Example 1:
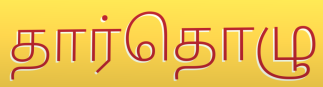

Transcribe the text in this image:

தார்தொழு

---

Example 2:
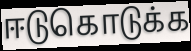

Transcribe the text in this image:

ஈடுகொடுக்க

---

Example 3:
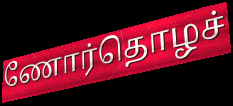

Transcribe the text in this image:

ணோர்தொழச்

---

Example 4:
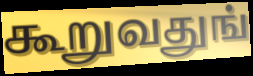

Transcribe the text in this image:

கூறுவதுங்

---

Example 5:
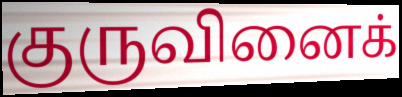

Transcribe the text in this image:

குருவினைக்